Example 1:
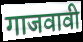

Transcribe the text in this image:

गाजवावी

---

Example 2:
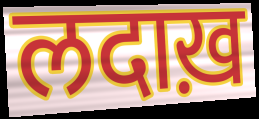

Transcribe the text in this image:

लदाख़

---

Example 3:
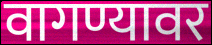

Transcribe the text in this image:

वागण्यावर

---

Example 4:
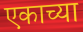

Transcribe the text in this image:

एकाच्या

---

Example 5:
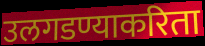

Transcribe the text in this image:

उलगडण्याकरिता